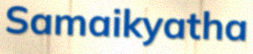
Samaikyatha